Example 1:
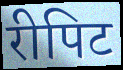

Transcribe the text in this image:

रीपिट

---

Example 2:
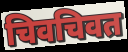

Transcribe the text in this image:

चिवचिवत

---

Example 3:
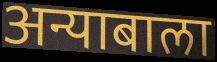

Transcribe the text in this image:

अन्याबाला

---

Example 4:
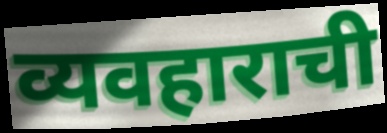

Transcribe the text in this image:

व्यवहाराची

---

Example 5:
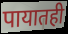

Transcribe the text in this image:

पायातही